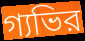
গ্যভির